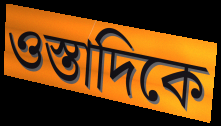
ওস্তাদিকে